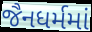
જૈનધર્મમાં